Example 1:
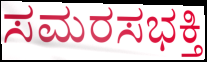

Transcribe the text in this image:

ಸಮರಸಭಕ್ತಿ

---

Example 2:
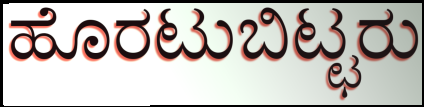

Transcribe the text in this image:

ಹೊರಟುಬಿಟ್ಟರು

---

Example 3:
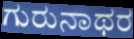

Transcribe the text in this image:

ಗುರುನಾಥರ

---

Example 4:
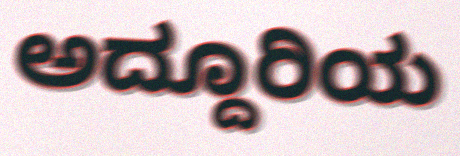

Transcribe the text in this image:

ಅದ್ದೂರಿಯ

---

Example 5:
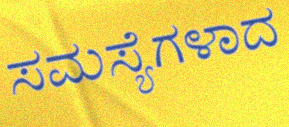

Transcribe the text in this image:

ಸಮಸ್ಯೆಗಳಾದ